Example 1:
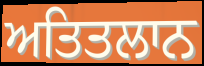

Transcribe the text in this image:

ਅਤਿਤਲਾਨ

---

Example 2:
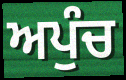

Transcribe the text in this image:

ਅਪੁੰਚ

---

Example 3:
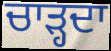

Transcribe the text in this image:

ਚਾੜ੍ਹਦਾ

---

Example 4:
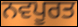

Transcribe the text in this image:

ਨਵਪੂਰਤ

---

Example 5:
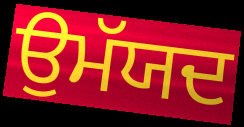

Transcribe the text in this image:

ਉਮੱਯਦ